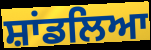
ਸ਼ਾਂਡਲਿਆ